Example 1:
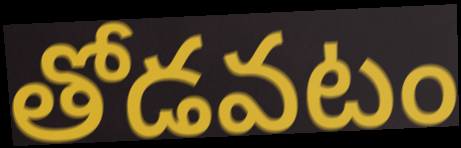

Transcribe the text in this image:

తోడవటం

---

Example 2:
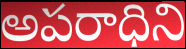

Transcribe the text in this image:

అపరాధిని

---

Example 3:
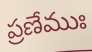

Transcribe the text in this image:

ప్రణేముః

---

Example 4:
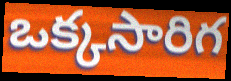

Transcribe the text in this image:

ఒక్కసారిగ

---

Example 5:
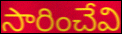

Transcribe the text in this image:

సారించేవి